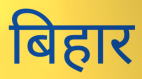
बिहार